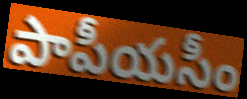
పాపీయసీం